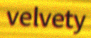
velvety